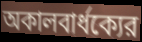
অকালবার্ধক্যের